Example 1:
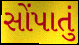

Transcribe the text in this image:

સોંપાતું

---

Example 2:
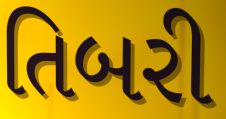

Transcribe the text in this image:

તિબરી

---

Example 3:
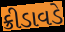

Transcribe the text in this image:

ક્રીડાવડે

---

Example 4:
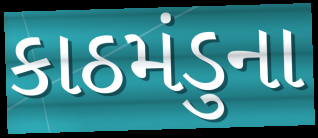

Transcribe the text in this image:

કાઠમંડુના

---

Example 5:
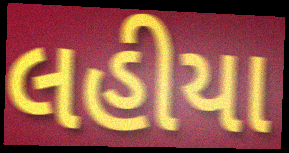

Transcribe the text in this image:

લહીયા